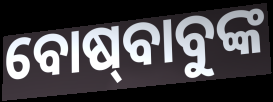
ବୋଷ୍‍ବାବୁଙ୍କ